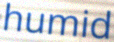
humid